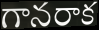
గానరాక